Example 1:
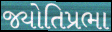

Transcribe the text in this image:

જ્યોતિપ્રભા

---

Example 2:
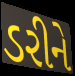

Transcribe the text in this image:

ડરીને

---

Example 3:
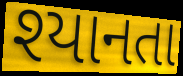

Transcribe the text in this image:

શ્યાનતા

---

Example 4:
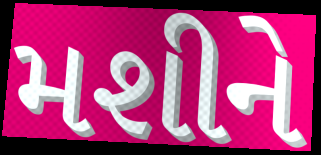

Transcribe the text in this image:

મશીને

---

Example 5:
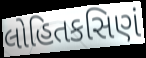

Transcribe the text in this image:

લોહિતકસિણં